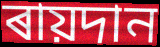
ৰায়দান